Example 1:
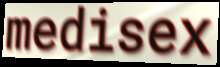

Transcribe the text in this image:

medisex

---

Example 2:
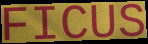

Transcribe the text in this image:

FICUS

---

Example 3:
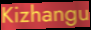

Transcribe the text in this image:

Kizhangu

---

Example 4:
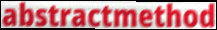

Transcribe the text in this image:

abstractmethod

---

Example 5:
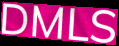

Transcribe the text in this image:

DMLS